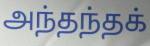
அந்தந்தக்